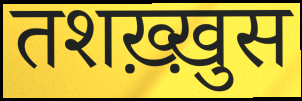
तशख़्ख़ुस